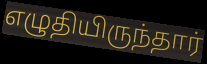
எழுதியிருந்தார்